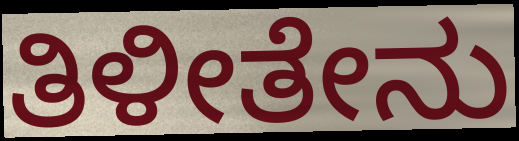
ತಿಳೀತೇನು